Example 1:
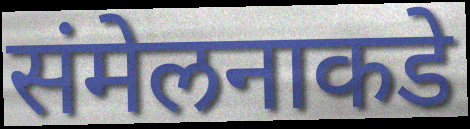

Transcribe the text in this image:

संमेलनाकडे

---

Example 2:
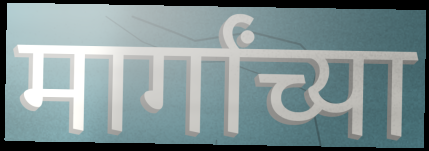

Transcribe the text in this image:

मार्गांच्या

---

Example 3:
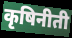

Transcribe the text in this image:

कृषिनीती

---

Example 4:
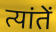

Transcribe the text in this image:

त्यांतें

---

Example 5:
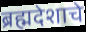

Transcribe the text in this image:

ब्रह्मदेशाचे